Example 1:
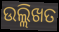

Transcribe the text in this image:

ଉଲ୍ଲିଖତ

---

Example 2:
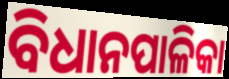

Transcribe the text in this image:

ବିଧାନପାଳିକା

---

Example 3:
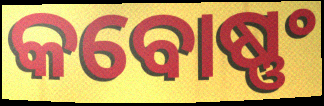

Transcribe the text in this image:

କବୋଷ୍ଣଂ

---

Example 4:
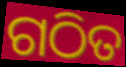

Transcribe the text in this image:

ଗଠିତ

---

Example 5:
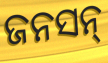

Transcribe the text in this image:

ଜନସନ୍